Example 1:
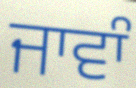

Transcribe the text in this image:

ਜਾਵਾੰ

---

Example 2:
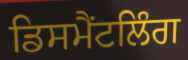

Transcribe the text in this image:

ਡਿਸਮੈਂਟਲਿੰਗ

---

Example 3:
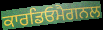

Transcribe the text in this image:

ਕਾਰਡਿਓਮੈਗਨਲ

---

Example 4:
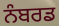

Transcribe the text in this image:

ਨੰਬਰਡ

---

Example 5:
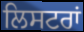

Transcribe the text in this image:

ਲਿਸਟਰਾਂ